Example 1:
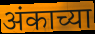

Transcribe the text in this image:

अंकाच्या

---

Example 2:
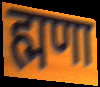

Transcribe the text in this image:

ह्मणा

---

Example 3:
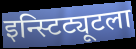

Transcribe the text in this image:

इन्स्टिट्यूटला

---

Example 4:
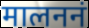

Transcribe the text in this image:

मालननं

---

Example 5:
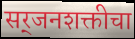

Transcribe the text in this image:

सर्जनशक्तीचा